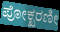
ಪೋಕ್ಖರಣೀ